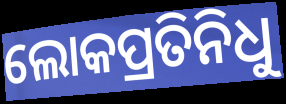
ଲୋକପ୍ରତିନିଧୁ